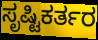
ಸೃಷ್ಟಿಕರ್ತರ